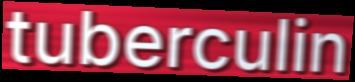
tuberculin